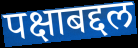
पक्षाबद्दल